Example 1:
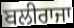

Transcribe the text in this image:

ਬਲੀਰਾਜਾ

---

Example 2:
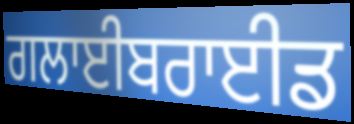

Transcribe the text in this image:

ਗਲਾਈਬਰਾਈਡ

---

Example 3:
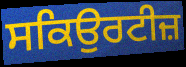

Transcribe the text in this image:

ਸਕਿਉਰਟੀਜ਼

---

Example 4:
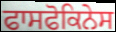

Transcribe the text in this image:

ਫਾਸਫੋਕਿਨੇਸ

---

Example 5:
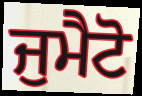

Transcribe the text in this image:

ਜੁਮੈਟੋ